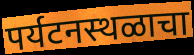
पर्यटनस्थळाचा